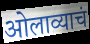
ओलाव्याचं